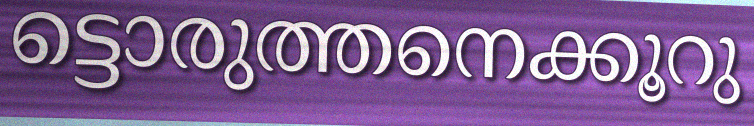
ട്ടൊരുത്തനെക്കൂറു